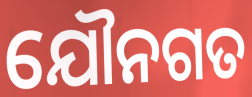
ଯୌନଗତ